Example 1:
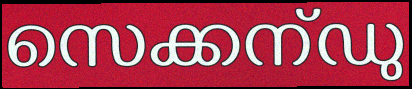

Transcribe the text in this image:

സെക്കന്ഡു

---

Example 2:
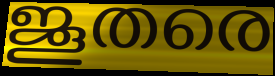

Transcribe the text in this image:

ജൂതരെ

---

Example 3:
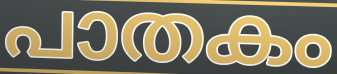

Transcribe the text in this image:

പാതകം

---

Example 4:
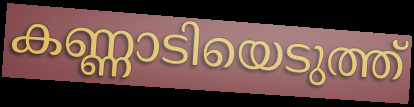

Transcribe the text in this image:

കണ്ണാടിയെടുത്ത്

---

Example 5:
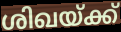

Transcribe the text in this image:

ശിഖയ്ക്ക്